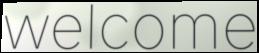
welcome